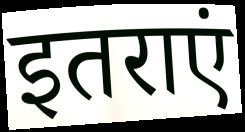
इतराएं